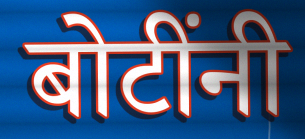
बोटींनी